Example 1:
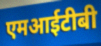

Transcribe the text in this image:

एमआईटीबी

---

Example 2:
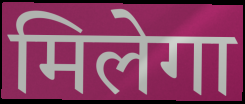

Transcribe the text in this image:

मिलेगा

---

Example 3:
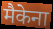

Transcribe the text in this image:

मैकेना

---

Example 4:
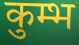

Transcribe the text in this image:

कुम्भ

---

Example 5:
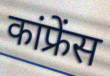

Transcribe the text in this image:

कांफ्रेंस